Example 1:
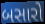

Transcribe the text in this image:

બસારો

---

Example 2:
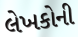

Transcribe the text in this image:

લેખકોની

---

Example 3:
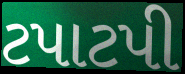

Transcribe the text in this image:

ટપાટપી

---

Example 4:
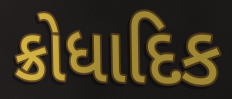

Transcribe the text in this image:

ક્રોધાદિક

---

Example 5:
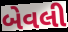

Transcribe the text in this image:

બેવલી